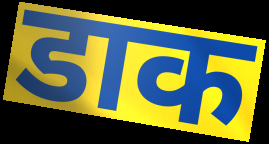
डाक